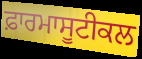
ਫ਼ਾਰਮਾਸੂਟੀਕਲ